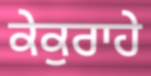
ਕੇਕੁਰਾਹੇ